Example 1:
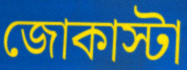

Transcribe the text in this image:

জোকাস্টা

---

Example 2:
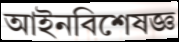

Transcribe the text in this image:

আইনবিশেষজ্ঞ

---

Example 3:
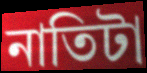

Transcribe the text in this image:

নাতিটা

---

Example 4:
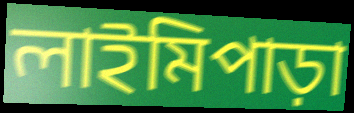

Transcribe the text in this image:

লাইমিপাড়া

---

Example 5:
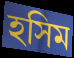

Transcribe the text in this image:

হসিম